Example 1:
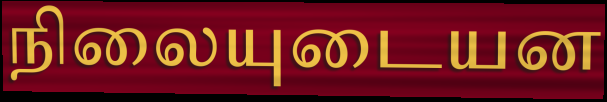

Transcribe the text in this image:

நிலையுடையன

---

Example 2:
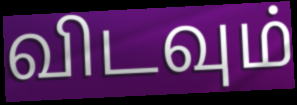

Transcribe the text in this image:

விடவும்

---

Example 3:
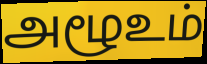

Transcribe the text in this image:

அழூஉம்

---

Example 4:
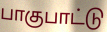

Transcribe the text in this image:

பாகுபாட்டு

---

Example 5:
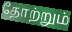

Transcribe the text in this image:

தோற்றும்